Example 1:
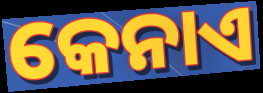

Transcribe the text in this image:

କେନାଏ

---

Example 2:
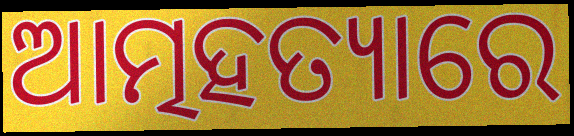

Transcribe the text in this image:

ଆତ୍ମହତ୍ୟାରେ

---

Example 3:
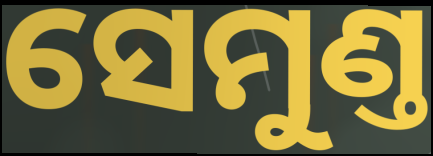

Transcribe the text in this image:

ସେମୁଣ୍ତ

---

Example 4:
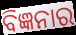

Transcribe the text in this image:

ବିଜ୍ଞନାର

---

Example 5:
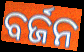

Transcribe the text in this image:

ବର୍ଜନ